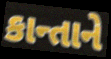
કાન્તાને